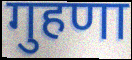
गुहणा